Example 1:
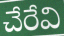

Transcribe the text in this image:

చేరేవి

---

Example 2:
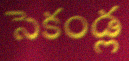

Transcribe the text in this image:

సెకండ్ల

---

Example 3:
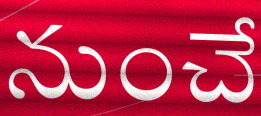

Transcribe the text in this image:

నుంచే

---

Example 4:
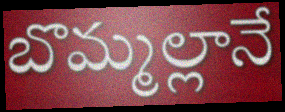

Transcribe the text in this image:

బొమ్మల్లానే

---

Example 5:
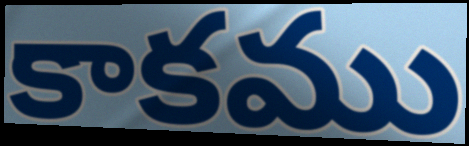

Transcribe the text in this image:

కాకము